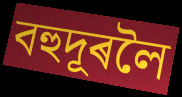
বহুদূৰলৈ